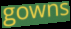
gowns